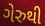
ગેરુથી